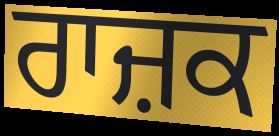
ਰਾਜ਼ਕ